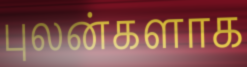
புலன்களாக